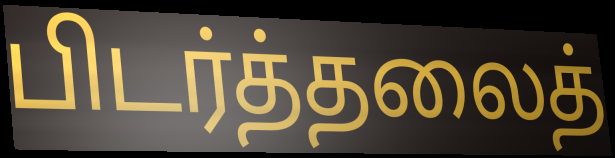
பிடர்த்தலைத்